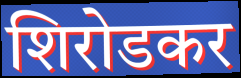
शिरोडकर